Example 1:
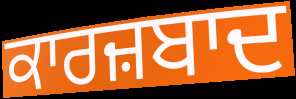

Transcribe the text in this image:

ਕਾਰਜ਼ਬਾਦ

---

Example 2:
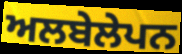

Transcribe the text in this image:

ਅਲਬੇਲੇਪਨ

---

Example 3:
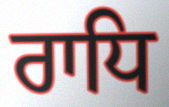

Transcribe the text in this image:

ਰਾਧਿ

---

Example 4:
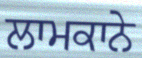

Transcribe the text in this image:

ਲਾਮਕਾਨੇ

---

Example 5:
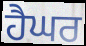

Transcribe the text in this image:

ਹੈਘਰ